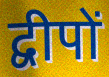
द्वीपों